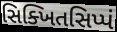
સિક્ખિતસિપ્પં